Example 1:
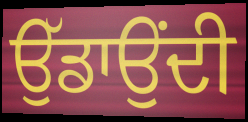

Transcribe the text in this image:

ਉੱਡਾਉਂਦੀ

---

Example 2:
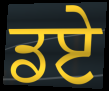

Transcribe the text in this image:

ਡਏ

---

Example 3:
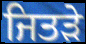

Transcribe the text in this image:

ਜਿਤੜੇ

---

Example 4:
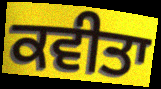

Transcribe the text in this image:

ਕਵੀਤਾ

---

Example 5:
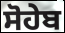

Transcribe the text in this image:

ਸੋਹੇਬ